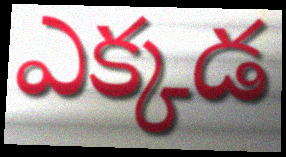
ఎక్కడ